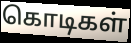
கொடிகள்